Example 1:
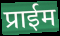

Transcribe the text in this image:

प्राईम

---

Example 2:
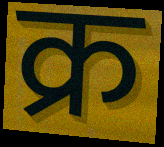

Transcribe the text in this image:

क्र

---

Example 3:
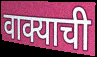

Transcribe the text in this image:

वाक्याची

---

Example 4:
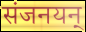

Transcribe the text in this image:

संजनयन्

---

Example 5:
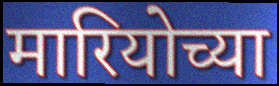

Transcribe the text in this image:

मारियोच्या